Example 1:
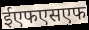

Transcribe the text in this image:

ईएफएसएफ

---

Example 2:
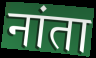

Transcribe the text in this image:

नांता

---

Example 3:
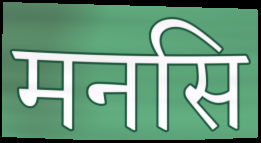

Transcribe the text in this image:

मनसि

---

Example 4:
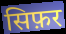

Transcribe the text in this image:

सिफ़र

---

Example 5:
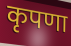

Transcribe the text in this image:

कृपणा